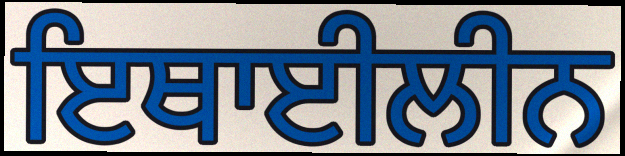
ਇਥਾਈਲੀਨ